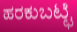
ಹರಕುಬಟ್ಟೆ